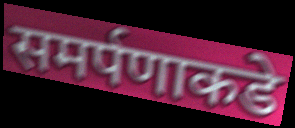
समर्पणाकडे